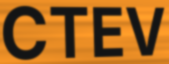
CTEV